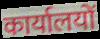
कार्यालयों